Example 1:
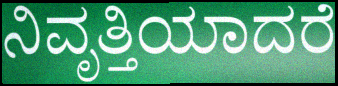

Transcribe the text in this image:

ನಿವೃತ್ತಿಯಾದರೆ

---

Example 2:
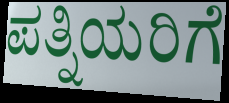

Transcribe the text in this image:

ಪತ್ನಿಯರಿಗೆ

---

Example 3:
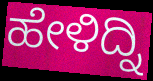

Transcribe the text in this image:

ಹೇಳಿದ್ನಿ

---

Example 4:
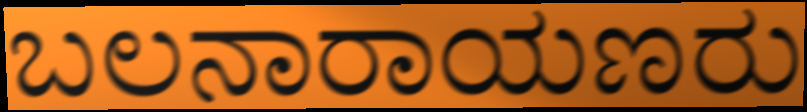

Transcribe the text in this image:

ಬಲನಾರಾಯಣರು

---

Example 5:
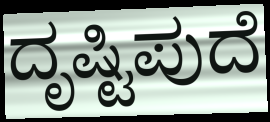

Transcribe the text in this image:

ದೃಷ್ಟಿಪುದೆ